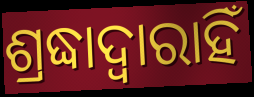
ଶ୍ରଦ୍ଧାଦ୍ୱାରାହିଁ